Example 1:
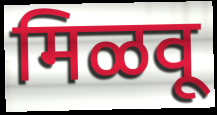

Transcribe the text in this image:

मिळवू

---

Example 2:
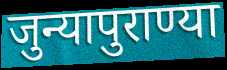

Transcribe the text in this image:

जुन्यापुराण्या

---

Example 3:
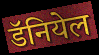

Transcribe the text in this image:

डॅनियेल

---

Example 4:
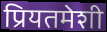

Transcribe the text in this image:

प्रियतमेशी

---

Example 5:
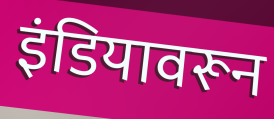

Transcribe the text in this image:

इंडियावरून